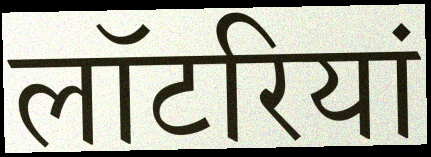
लॉटरियां